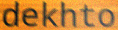
dekhto